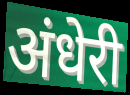
अंधेरी